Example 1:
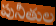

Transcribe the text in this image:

పునీతుల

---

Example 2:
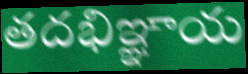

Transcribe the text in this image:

తదభిఞ్ఞాయ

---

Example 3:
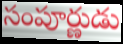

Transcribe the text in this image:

సంపూర్ణుడు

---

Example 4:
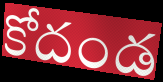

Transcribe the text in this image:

కోదండ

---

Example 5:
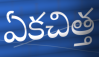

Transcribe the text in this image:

ఏకచిత్త